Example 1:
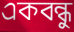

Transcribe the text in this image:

একবন্ধু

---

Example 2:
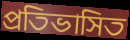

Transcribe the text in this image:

প্রতিভাসিত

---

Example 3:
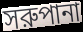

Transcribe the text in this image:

সরুপানা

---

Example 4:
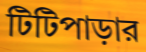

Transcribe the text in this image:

টিটিপাড়ার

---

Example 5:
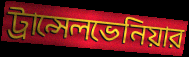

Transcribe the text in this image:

ট্রান্সেলভেনিয়ার